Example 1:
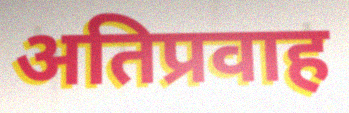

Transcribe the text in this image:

अतिप्रवाह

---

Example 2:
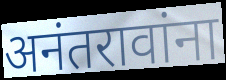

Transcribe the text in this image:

अनंतरावांना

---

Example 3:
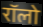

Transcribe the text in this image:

रॉलो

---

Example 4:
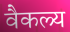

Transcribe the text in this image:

वैकल्य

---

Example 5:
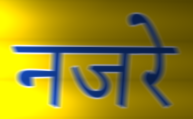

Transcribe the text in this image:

नजरे